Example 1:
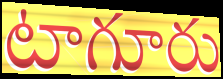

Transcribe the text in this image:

టాగూరు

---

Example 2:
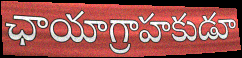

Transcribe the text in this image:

ఛాయాగ్రాహకుడూ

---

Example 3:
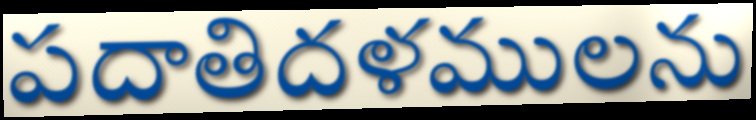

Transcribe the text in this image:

పదాతిదళములను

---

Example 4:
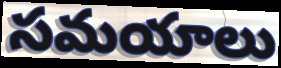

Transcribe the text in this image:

సమయాలు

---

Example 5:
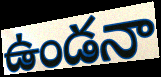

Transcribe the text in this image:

ఉండనా